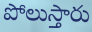
పోలుస్తారు